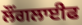
ਲੌਂਗਲਾਈਫ